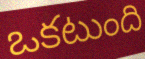
ఒకటుంది